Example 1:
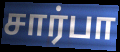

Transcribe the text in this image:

சார்பா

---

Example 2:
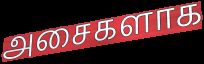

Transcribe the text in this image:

அசைகளாக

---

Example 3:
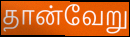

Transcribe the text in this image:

தான்வேறு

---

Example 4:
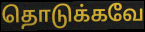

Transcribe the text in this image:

தொடுக்கவே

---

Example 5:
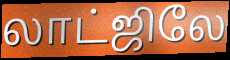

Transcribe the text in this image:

லாட்ஜிலே